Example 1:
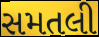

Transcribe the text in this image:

સમતલી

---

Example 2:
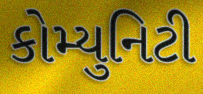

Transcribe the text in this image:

કોમ્યુનિટી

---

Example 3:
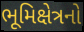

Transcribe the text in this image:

ભૂમિક્ષેત્રનો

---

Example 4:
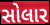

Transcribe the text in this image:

સોલાર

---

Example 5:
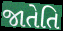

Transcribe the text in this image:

જાતેતિ